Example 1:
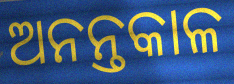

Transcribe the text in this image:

ଅନନ୍ତକାଳ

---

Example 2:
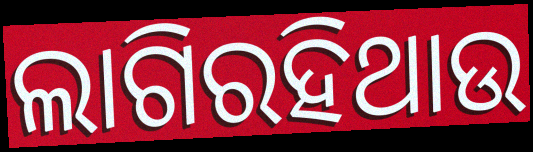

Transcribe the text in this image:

ଲାଗିରହିଥାଉ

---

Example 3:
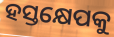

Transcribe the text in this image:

ହସ୍ତକ୍ଷେପକୁ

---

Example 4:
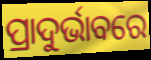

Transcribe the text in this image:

ପ୍ରାଦୁର୍ଭାବରେ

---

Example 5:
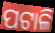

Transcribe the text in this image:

ପଟାଳି